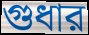
গুধার